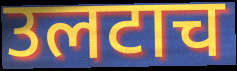
उलटाच